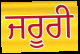
ਜਰੂਰੀ